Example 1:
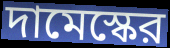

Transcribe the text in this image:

দামেস্কের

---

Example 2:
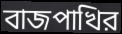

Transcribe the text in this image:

বাজপাখির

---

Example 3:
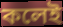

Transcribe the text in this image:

কলেই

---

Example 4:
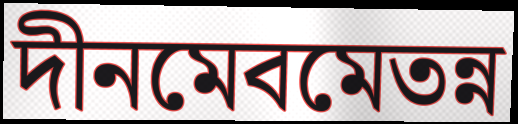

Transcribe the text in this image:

দীনমেবমেতন্ন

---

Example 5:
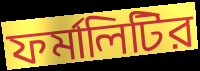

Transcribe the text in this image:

ফর্মালিটির